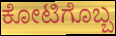
ಕೋಟಿಗೊಬ್ಬ